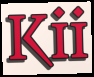
Kii